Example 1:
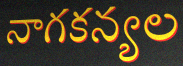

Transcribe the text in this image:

నాగకన్యల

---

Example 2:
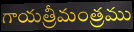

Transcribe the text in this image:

గాయత్రీమంత్రము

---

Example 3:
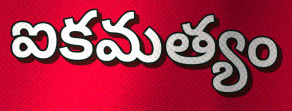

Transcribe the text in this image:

ఐకమత్యం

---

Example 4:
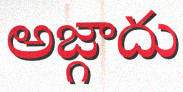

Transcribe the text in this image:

అజ్గాదు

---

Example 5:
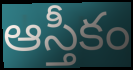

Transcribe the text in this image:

ఆస్తీకం